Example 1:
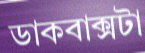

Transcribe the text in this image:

ডাকবাক্সটা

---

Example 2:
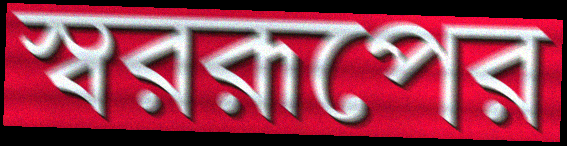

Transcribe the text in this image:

স্বররূপের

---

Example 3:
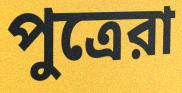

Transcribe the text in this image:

পুত্রেরা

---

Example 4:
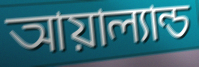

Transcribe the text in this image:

আয়াল্যান্ড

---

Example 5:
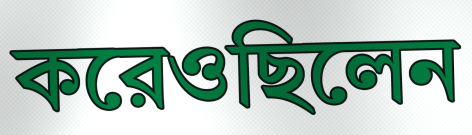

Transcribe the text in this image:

করেওছিলেন